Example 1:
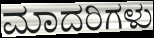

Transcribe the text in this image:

ಮಾದರಿಗಳು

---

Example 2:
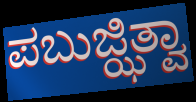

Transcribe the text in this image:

ಪಬುಜ್ಝಿತ್ವಾ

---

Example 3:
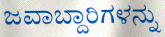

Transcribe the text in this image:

ಜವಾಬ್ದಾರಿಗಳನ್ನು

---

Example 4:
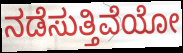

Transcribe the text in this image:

ನಡೆಸುತ್ತಿವೆಯೋ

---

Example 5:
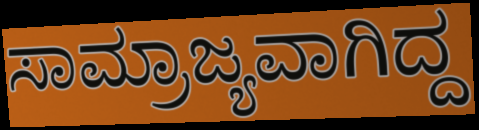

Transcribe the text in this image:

ಸಾಮ್ರಾಜ್ಯವಾಗಿದ್ದ